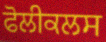
ਫੋਲੀਕਲਸ